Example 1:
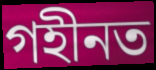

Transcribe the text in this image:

গহীনত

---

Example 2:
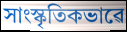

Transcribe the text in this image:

সাংস্কৃতিকভাৱে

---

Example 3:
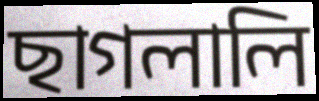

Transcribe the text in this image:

ছাগলালি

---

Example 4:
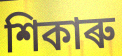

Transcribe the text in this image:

শিকাৰু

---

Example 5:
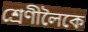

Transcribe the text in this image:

শ্ৰেণীলৈকে